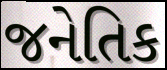
જનેતિક